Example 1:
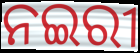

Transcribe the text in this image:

ନଇରୀ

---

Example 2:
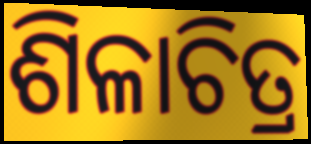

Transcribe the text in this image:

ଶିଳାଚିତ୍ର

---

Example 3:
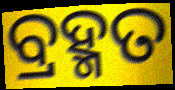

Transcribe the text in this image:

ବ୍ରହ୍ମତ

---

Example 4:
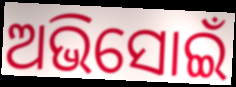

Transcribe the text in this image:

ଅଭିସୋଇଁ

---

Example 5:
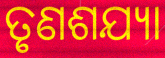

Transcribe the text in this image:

ତୃଣଶଯ୍ୟା